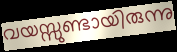
വയസ്സുണ്ടായിരുന്നു